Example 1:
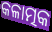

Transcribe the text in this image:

କଳାତ୍ମକ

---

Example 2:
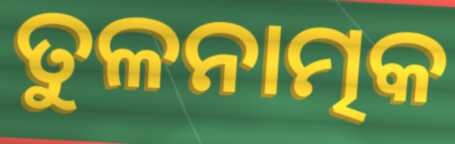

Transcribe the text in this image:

ତୁଳନାତ୍ମକ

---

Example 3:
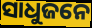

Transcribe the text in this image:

ସାଧୁଜନେ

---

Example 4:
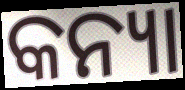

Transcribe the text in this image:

କନ୍ୟା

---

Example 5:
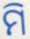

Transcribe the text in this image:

ମି